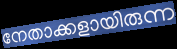
നേതാക്കളായിരുന്ന